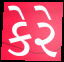
કેરે